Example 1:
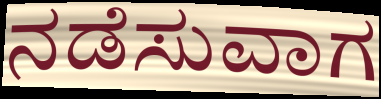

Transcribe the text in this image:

ನಡೆಸುವಾಗ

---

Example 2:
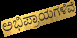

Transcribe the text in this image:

ಅಭಿಪ್ರಾಯಗಳಿವೆ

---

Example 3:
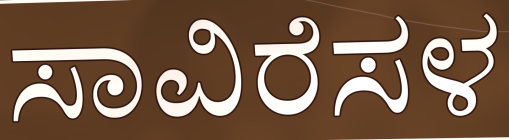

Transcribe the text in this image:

ಸಾವಿರೆಸಳ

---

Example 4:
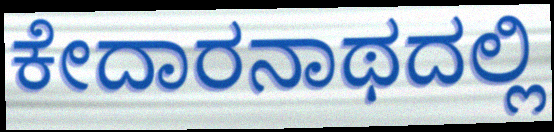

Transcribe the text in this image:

ಕೇದಾರನಾಥದಲ್ಲಿ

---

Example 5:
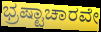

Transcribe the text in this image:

ಭ್ರಷ್ಟಾಚಾರವೇ